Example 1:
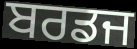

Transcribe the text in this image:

ਬਰਡਜ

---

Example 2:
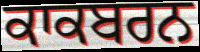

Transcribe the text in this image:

ਕਾਕਬਰਨ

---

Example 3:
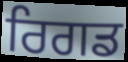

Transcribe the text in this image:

ਰਿਗਡ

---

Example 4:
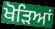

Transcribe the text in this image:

ਖੋੜਿਆਂ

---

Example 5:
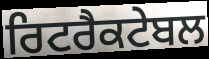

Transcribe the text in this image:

ਰਿਟਰੈਕਟੇਬਲ